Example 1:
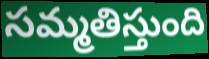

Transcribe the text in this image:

సమ్మతిస్తుంది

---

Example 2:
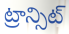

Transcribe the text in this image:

ట్రాన్సిట్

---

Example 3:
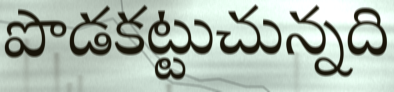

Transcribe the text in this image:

పొడకట్టుచున్నది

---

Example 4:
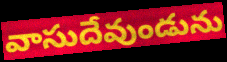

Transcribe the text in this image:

వాసుదేవుండును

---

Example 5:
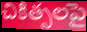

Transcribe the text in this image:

చికిత్సలపై